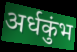
अर्धकुंभ